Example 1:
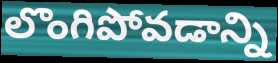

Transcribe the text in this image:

లొంగిపోవడాన్ని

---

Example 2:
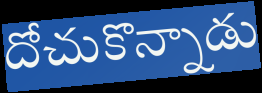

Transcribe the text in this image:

దోచుకొన్నాడు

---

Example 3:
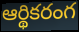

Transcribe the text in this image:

ఆర్థికరంగ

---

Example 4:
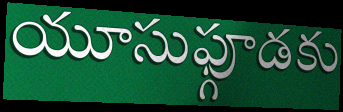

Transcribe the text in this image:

యూసుఫ్గూడకు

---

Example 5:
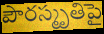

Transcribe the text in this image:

పౌరస్మృతిపై